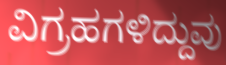
ವಿಗ್ರಹಗಳಿದ್ದುವು